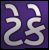
ટેકે